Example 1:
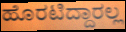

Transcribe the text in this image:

ಹೊರಟಿದ್ದಾರಲ್ಲ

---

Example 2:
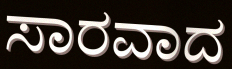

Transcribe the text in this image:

ಸಾರವಾದ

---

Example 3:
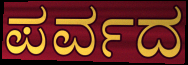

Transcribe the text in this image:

ಪರ್ವದ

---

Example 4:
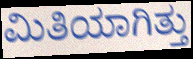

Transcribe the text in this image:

ಮಿತಿಯಾಗಿತ್ತು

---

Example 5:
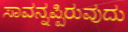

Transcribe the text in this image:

ಸಾವನ್ನಪ್ಪಿರುವುದು